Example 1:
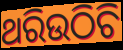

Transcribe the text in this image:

ଥରିଉଠିଚି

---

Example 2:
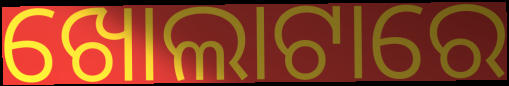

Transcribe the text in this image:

ଖୋଲାଟାରେ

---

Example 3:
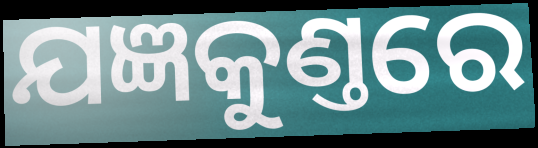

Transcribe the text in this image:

ଯଜ୍ଞକୁଣ୍ତରେ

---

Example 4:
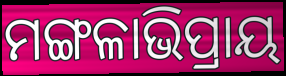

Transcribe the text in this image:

ମଙ୍ଗଳାଭିପ୍ରାୟ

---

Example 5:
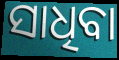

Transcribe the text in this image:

ସାଧିବା